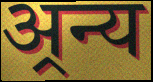
अ्रन्य